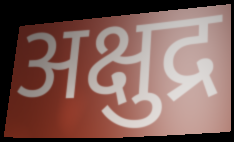
अक्षुद्र